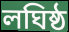
লঘিষ্ঠ